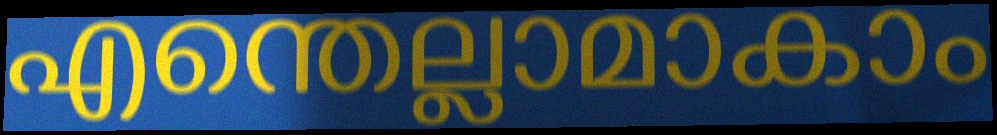
എന്തെല്ലാമാകാം